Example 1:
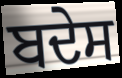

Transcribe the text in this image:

ਬਦੇਸ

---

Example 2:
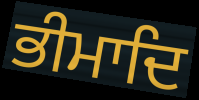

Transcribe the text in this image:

ਭੀਮਾਦਿ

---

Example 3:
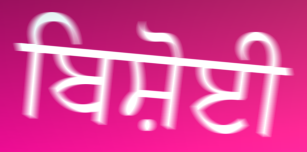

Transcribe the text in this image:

ਬਿਸ਼ੋਈ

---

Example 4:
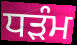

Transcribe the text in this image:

ਧੜੰਮ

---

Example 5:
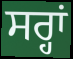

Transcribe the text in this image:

ਸਰ੍ਹਾਂ